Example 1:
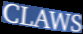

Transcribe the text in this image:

CLAWS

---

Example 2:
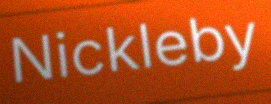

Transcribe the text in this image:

Nickleby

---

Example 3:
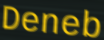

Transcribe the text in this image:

Deneb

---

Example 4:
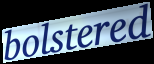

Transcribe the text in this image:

bolstered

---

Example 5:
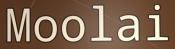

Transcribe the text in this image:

Moolai